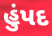
હુંપદ